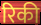
रिकी